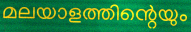
മലയാളത്തിന്റെയും